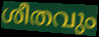
ശീതവും